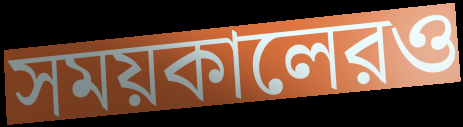
সময়কালেরও